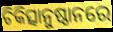
ଚିକିତ୍ସାନୁଷ୍ଠାନରେ